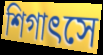
শিগাৎসে